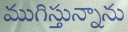
ముగిస్తున్నాను